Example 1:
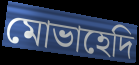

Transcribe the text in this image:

মোভাহেদি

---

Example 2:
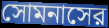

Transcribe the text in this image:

সোমনাসের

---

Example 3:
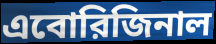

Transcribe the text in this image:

এবোরিজিনাল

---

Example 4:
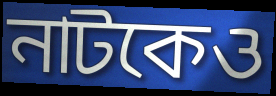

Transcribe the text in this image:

নাটকেও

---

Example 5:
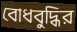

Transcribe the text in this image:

বোধবুদ্ধির